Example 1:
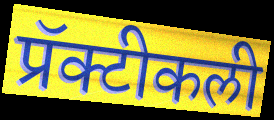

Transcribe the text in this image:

प्रॅक्टीकली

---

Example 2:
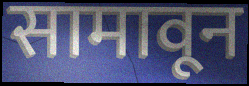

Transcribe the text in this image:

सामावून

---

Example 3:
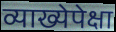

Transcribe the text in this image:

व्याख्येपेक्षा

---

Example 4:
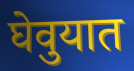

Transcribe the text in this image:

घेवुयात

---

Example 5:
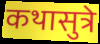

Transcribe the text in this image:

कथासुत्रे